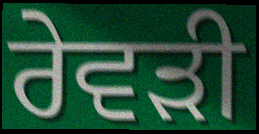
ਰੇਵੜੀ